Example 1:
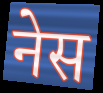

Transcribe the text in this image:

नेस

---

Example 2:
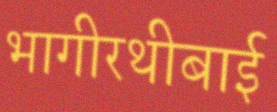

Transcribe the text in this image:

भागीरथीबाई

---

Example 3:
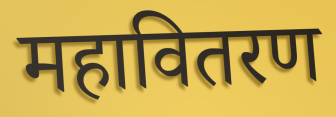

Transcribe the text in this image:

महावितरण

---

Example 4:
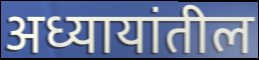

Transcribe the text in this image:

अध्यायांतील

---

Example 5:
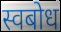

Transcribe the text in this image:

स्वबोध